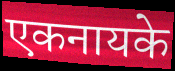
एकनायके